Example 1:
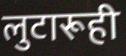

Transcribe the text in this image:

लुटारूही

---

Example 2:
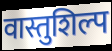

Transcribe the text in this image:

वास्तुशिल्प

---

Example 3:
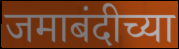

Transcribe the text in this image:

जमाबंदीच्या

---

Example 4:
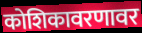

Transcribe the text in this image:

कोशिकावरणावर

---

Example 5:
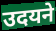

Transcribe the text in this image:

उदयने